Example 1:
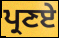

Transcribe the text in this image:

ਪ੍ਰਣਏ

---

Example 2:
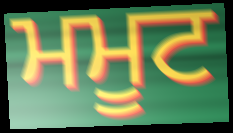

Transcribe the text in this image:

ਮਮੂਟ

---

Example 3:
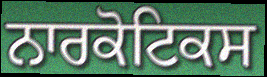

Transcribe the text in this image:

ਨਾਰਕੋਟਿਕਸ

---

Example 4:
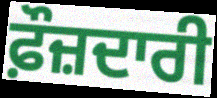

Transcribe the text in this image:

ਫ਼ੌਜ਼ਦਾਰੀ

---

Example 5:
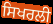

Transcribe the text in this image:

ਸਿਖਰਲੀ